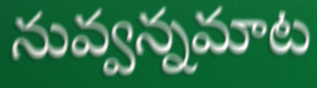
నువ్వన్నమాట